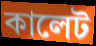
কালেট